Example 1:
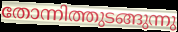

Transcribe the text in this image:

തോന്നിത്തുടങ്ങുന്നു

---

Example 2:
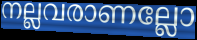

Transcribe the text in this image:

നല്ലവരാണല്ലോ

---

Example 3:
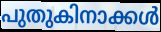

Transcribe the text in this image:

പുതുകിനാക്കൾ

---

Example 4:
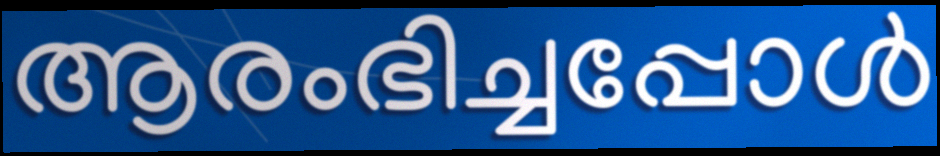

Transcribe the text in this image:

ആരംഭിച്ചപ്പോൾ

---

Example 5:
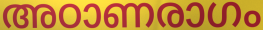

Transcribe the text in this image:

അഠാണരാഗം